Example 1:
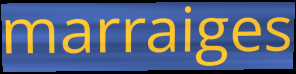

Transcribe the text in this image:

marraiges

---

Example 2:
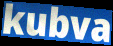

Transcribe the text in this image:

kubva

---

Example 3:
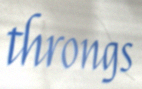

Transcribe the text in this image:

throngs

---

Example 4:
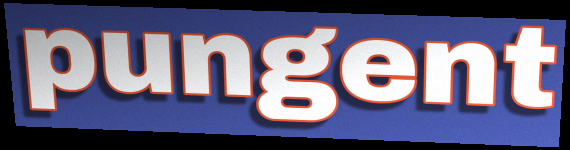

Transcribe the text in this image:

pungent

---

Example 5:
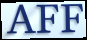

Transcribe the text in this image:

AFF